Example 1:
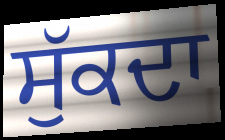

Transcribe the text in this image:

ਸੁੱਕਦਾ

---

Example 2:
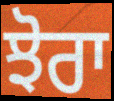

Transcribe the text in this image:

ਝੋਰਾ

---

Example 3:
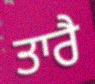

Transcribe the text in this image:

ਤਾਰੈ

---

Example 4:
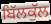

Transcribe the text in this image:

ਬਿੱਲਕੁੱਲ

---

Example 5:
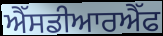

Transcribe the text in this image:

ਐੱਸਡੀਆਰਐੱਫ